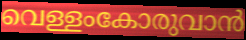
വെള്ളംകോരുവാൻ